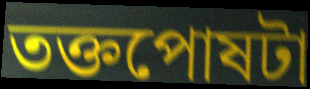
তক্তপোষটা